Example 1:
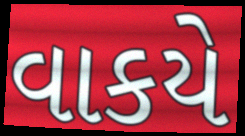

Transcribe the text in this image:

વાકયે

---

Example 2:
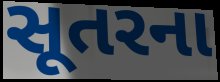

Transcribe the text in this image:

સૂતરના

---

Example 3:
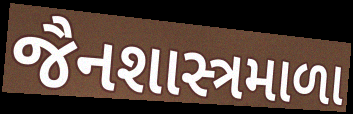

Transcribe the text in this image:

જૈનશાસ્ત્રમાળા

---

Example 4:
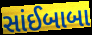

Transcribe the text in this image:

સાંઈબાબા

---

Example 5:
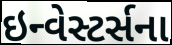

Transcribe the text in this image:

ઇન્વેસ્ટર્સના